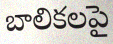
బాలికలపై